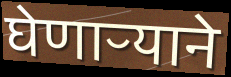
घेणाऱ्याने